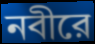
নবীরে